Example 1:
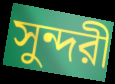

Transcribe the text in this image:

সুন্দরী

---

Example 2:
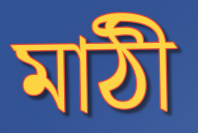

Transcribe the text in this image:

মাঠী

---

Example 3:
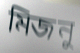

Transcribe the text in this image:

মিজনু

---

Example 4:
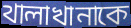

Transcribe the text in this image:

থালাখানাকে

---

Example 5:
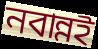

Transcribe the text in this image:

নবান্নই